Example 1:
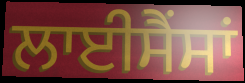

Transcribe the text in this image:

ਲਾਈਸੈਂਸਾਂ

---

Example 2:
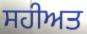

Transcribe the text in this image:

ਸਹੀਅਤ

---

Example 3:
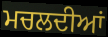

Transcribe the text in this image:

ਮਚਲਦੀਆਂ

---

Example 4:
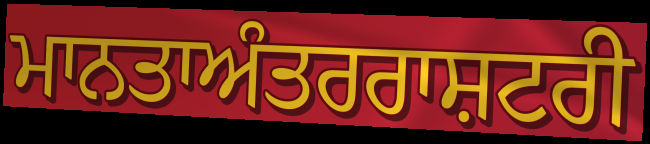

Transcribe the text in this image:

ਮਾਨਤਾਅੰਤਰਰਾਸ਼ਟਰੀ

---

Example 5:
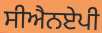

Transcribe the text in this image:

ਸੀਐਨਏਪੀ